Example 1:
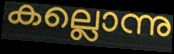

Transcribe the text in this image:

കല്ലൊന്നു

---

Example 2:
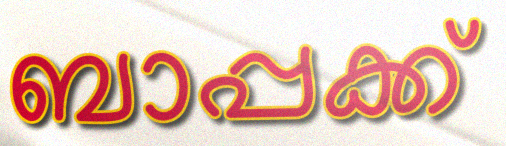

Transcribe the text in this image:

ബാപ്പക്ക്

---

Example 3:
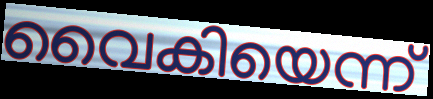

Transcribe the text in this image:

വൈകിയെന്ന്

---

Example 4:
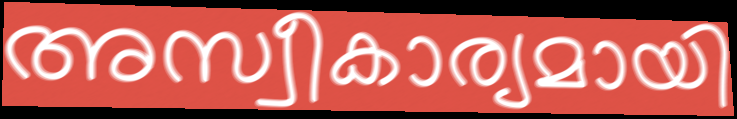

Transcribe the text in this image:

അസ്വീകാര്യമായി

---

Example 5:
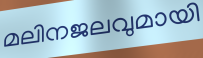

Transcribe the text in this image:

മലിനജലവുമായി